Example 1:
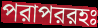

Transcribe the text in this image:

পরাপররহঃ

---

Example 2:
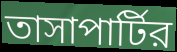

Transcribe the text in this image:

তাসাপার্টির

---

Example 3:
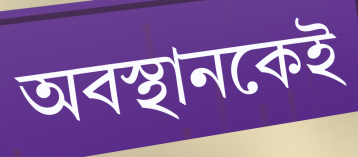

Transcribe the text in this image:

অবস্থানকেই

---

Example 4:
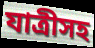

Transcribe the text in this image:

যাত্রীসহ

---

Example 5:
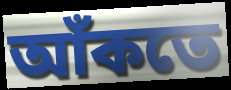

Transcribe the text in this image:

আঁকতে